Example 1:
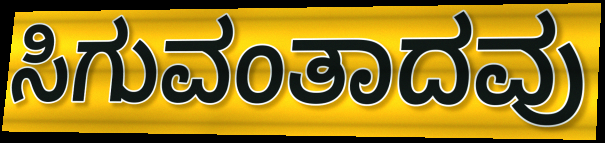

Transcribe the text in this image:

ಸಿಗುವಂತಾದವು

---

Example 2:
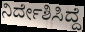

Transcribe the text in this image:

ನಿರ್ದೇಶಿಸಿದ್ದೆ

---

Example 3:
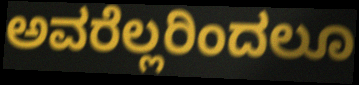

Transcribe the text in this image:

ಅವರೆಲ್ಲರಿಂದಲೂ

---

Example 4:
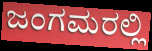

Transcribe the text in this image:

ಜಂಗಮರಲ್ಲಿ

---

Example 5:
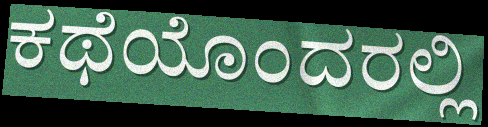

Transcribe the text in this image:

ಕಥೆಯೊಂದರಲ್ಲಿ